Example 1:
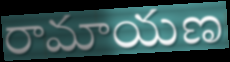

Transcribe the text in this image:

రామాయణ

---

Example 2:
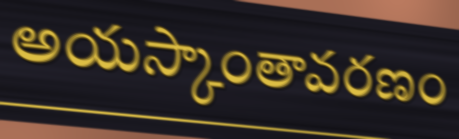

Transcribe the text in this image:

అయస్కాంతావరణం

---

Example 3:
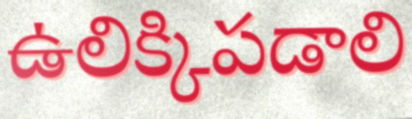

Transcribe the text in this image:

ఉలిక్కిపడాలి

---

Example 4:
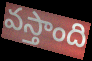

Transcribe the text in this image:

వస్తాంది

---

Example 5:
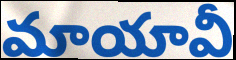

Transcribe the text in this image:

మాయావీ